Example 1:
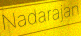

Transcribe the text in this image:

Nadarajan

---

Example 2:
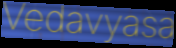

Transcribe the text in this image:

Vedavyasa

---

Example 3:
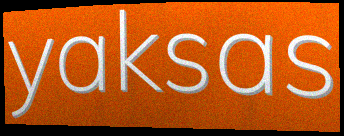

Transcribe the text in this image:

yaksas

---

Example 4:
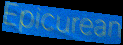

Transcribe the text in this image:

Epicurean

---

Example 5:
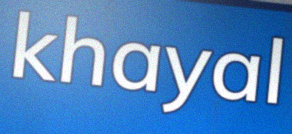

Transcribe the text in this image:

khayal